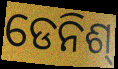
ଡେନିଶ୍